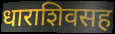
धाराशिवसह